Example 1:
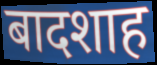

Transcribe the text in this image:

बादशाह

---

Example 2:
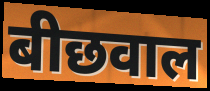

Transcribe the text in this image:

बीछवाल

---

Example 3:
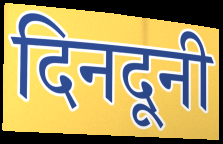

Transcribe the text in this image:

दिनदूनी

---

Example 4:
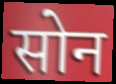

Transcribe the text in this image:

सोन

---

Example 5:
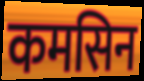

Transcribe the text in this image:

कमसिन